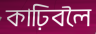
কাঢ়িবলৈ